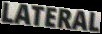
LATERAL